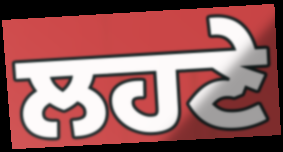
ਲਹਣੇ